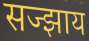
सज्झाय